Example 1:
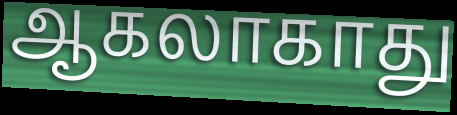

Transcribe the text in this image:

ஆகலாகாது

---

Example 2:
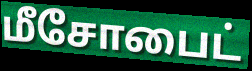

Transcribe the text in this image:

மீசோபைட்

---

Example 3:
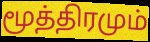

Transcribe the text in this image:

மூத்திரமும்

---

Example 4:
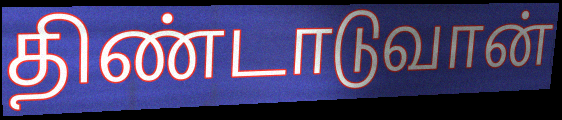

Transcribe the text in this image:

திண்டாடுவான்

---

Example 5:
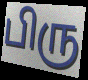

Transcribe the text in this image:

பிரு